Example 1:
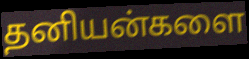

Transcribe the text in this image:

தனியன்களை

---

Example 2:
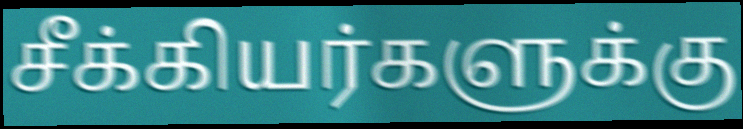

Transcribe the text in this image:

சீக்கியர்களுக்கு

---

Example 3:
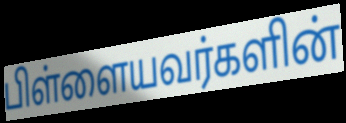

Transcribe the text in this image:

பிள்ளையவர்களின்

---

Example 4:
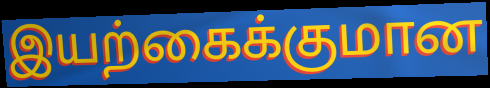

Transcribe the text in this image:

இயற்கைக்குமான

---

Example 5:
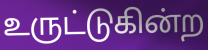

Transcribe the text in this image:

உருட்டுகின்ற